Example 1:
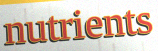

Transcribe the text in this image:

nutrients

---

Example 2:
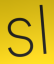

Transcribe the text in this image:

sl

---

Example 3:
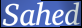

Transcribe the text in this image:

Sahed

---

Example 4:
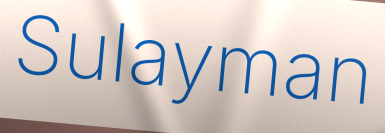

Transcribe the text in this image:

Sulayman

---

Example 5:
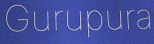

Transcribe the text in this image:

Gurupura